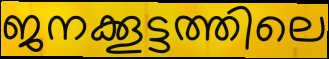
ജനക്കൂട്ടത്തിലെ